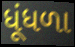
ધૂંધળા